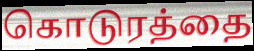
கொடுரத்தை